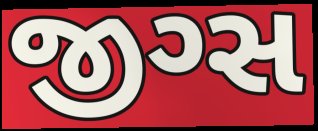
જીગ્સ